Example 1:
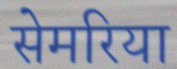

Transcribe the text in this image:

सेमरिया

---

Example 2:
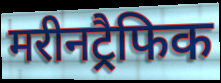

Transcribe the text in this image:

मरीनट्रैफिक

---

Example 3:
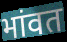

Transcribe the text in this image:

भांवत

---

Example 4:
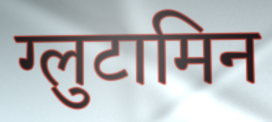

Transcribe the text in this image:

ग्लुटामिन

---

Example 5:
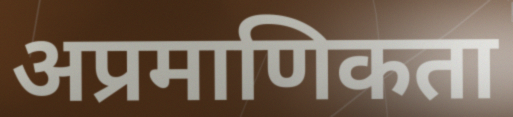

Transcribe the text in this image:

अप्रमाणिकता